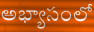
అభ్యాసంలో